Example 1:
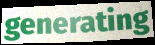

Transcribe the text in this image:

generating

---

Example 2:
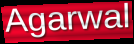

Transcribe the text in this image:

Agarwal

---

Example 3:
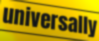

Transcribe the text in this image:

universally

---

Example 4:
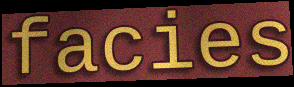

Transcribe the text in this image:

facies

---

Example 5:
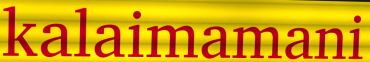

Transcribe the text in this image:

kalaimamani